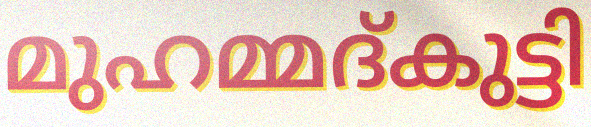
മുഹമ്മദ്കുട്ടി